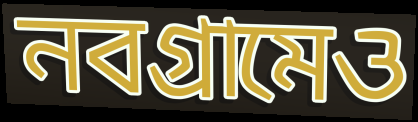
নবগ্রামেও